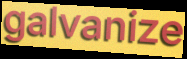
galvanize